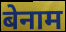
बेनाम